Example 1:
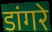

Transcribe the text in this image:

डांगरे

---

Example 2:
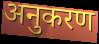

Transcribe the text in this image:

अनुकरण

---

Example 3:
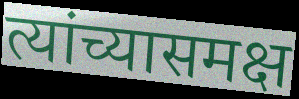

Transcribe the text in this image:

त्यांच्यासमक्ष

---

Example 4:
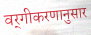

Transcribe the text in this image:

वर्गीकरणानुसार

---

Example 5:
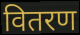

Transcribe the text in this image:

वितरण